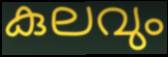
കുലവും